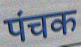
पंचक